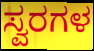
ಸ್ವರಗಳ